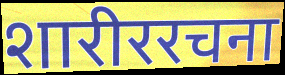
शारीररचना